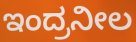
ಇಂದ್ರನೀಲ